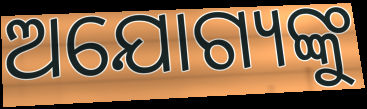
ଅଯୋଗ୍ୟଙ୍କୁ